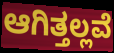
ಆಗಿತ್ತಲ್ಲವೆ